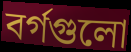
বর্গগুলো